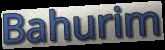
Bahurim